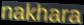
nakhara